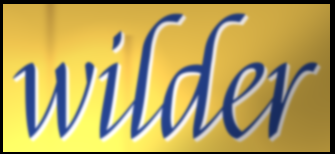
wilder